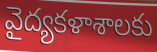
వైద్యకళాశాలకు